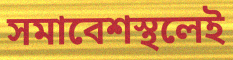
সমাবেশস্থলেই